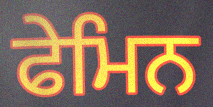
ਫੇਮਿਨ